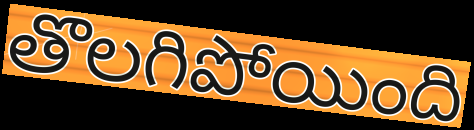
తొలగిపోయింది